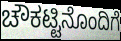
ಚೌಕಟ್ಟಿನೊಂದಿಗೆ